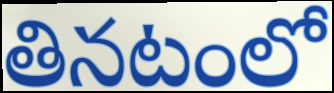
తినటంలో